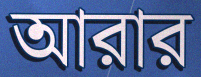
আরার